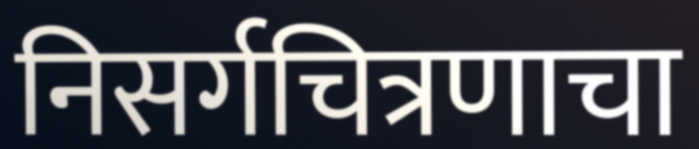
निसर्गचित्रणाचा